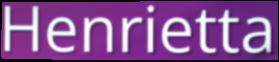
Henrietta